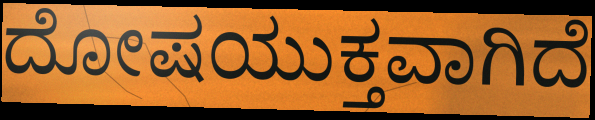
ದೋಷಯುಕ್ತವಾಗಿದೆ